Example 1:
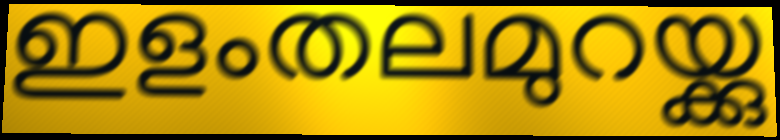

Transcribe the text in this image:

ഇളംതലമുറയ്ക്കു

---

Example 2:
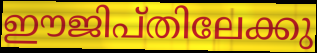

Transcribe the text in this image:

ഈജിപ്തിലേക്കു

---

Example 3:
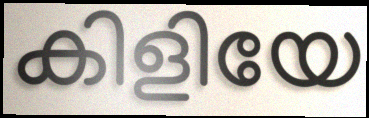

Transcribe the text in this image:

കിളിയേ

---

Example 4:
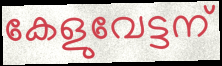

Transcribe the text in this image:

കേളുവേട്ടന്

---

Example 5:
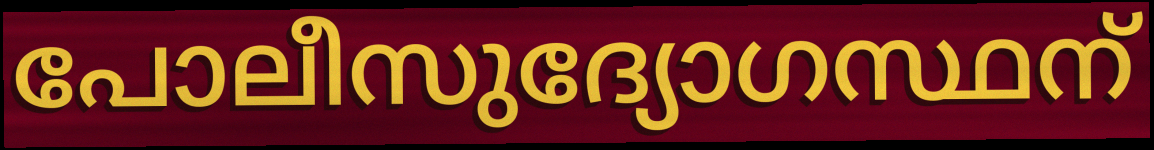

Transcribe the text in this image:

പോലീസുദ്യോഗസ്ഥന്